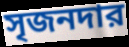
সৃজনদার